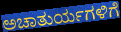
ಅಚಾತುರ್ಯಗಳಿಗೆ